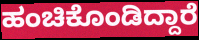
ಹಂಚಿಕೊಂಡಿದ್ದಾರೆ